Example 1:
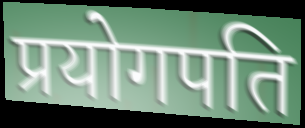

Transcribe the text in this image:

प्रयोगपति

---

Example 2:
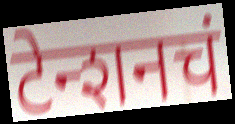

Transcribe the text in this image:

टेन्शनचं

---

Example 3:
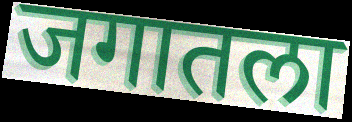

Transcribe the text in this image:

जगातला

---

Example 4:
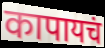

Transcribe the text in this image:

कापायचं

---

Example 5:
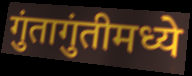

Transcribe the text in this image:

गुंतागुंतीमध्ये